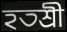
হতশ্রী